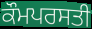
ਕੌਮਪਰਸਤੀ